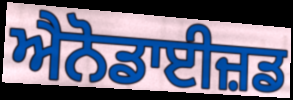
ਐਨੋਡਾਈਜ਼ਡ